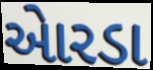
એારડા